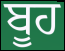
ਬੂਹ